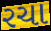
રચા